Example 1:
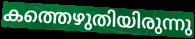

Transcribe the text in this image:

കത്തെഴുതിയിരുന്നു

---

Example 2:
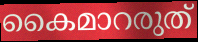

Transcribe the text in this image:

കൈമാറരുത്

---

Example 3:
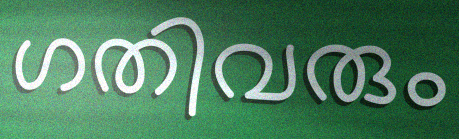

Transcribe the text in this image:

ഗതിവരും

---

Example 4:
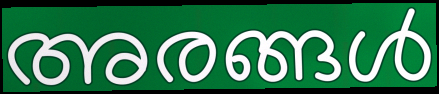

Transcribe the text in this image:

അരങ്ങൾ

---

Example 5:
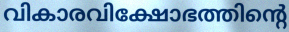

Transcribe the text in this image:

വികാരവിക്ഷോഭത്തിന്റെ